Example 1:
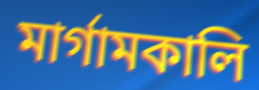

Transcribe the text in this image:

মাৰ্গামকালি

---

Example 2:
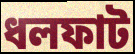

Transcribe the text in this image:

ধলফাট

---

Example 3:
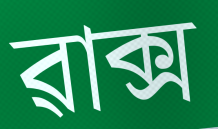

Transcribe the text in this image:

ৱাক্স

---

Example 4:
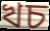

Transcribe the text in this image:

খচ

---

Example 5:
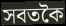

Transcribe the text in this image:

সবতকৈ